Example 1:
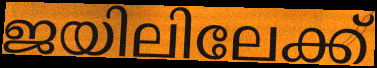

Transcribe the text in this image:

ജയിലിലേക്ക്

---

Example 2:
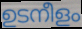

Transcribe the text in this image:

ഉടനീളം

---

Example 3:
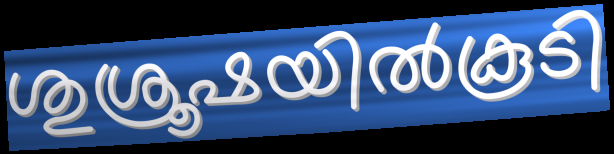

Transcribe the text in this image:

ശുശ്രൂഷയിൽകൂടി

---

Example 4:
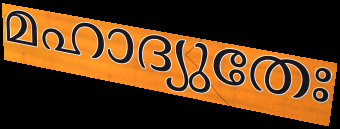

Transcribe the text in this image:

മഹാദ്യുതേഃ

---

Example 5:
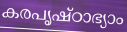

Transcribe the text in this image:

കരപൃഷ്ഠാഭ്യാം